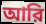
আরি